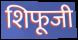
शिफूजी